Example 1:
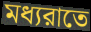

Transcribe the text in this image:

মধ্যরাতে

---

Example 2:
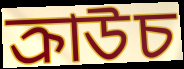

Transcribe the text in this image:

ক্রাউচ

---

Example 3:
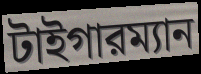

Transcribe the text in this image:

টাইগারম্যান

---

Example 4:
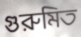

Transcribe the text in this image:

গুরুমিত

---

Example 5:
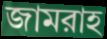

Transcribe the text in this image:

জামরাহ